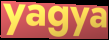
yagya